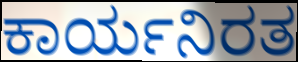
ಕಾರ್ಯನಿರತ